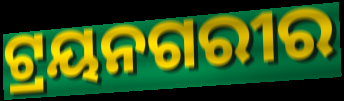
ଟ୍ରୟନଗରୀର